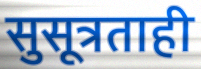
सुसूत्रताही